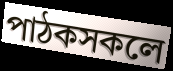
পাঠকসকলে